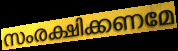
സംരക്ഷിക്കണമേ